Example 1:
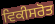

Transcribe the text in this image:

ਵਿਕੀਸਰੋਤ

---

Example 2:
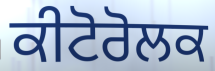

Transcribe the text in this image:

ਕੀਟੋਰੋਲਕ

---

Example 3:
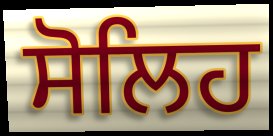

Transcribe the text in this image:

ਸੋਲਿਹ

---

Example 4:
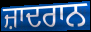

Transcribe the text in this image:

ਜ਼ਾਦਰਾਨ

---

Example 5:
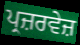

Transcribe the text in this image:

ਪ੍ਰਜ਼ਰਵੇਜ਼